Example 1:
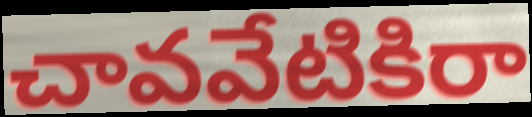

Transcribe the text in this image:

చావవేటికిరా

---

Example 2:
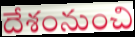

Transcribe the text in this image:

దేశంనుంచి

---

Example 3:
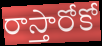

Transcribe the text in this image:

రాస్తారోకో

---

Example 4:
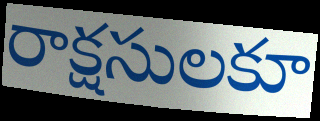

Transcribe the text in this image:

రాక్షసులకూ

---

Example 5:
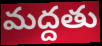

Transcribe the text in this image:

మద్దతు